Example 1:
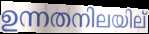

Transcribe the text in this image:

ഉന്നതനിലയില്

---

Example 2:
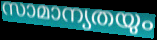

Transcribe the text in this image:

സാമാന്യതയും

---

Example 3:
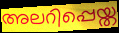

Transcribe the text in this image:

അലറിപ്പെയ്ത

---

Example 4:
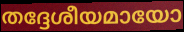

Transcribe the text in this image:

തദ്ദേശീയമായോ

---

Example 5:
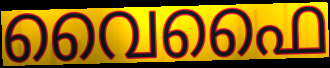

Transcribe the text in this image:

വൈഫൈ